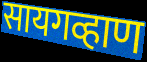
सायगव्हाण